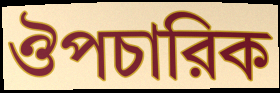
ঔপচারিক